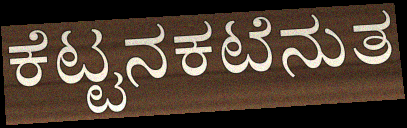
ಕೆಟ್ಟನಕಟೆನುತ